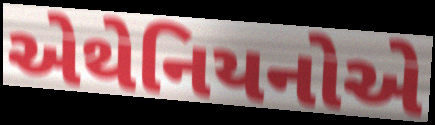
એથેનિયનોએ